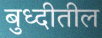
बुध्दीतील